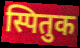
स्पितुक